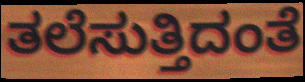
ತಲೆಸುತ್ತಿದಂತೆ